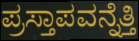
ಪ್ರಸ್ತಾಪವನ್ನೆತ್ತಿ